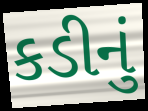
કડીનું